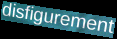
disfigurement